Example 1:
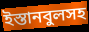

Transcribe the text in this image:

ইস্তানবুলসহ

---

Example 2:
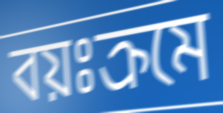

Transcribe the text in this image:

বয়ঃক্রমে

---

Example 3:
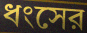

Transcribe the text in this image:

ধংসের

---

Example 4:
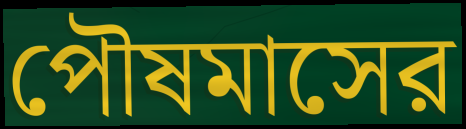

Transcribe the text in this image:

পৌষমাসের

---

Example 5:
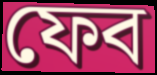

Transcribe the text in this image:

ফেব